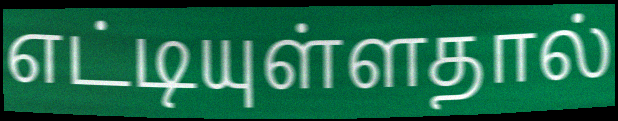
எட்டியுள்ளதால்